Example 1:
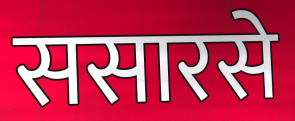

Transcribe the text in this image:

ससारसे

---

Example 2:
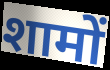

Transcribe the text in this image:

शामों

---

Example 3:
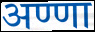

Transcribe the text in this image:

अण्णा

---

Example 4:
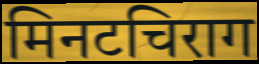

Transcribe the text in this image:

मिनटचिराग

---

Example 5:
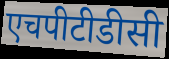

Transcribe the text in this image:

एचपीटीडीसी